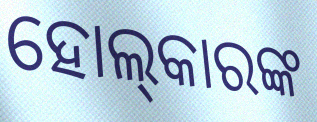
ହୋଲ୍‍କାରଙ୍କ